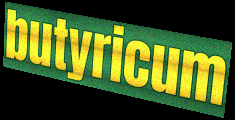
butyricum